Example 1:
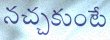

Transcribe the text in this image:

నచ్చకుంటే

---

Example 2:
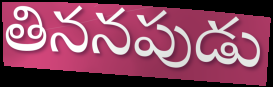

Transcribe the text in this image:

తిననపుడు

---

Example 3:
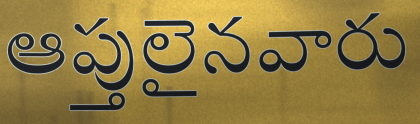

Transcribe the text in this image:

ఆప్తులైనవారు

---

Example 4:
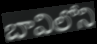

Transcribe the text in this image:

బావిలోని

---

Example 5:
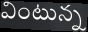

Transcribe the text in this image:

వింటున్న